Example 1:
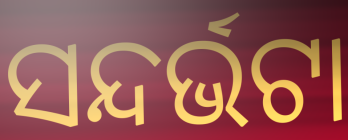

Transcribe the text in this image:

ସନ୍ଦର୍ଭଟା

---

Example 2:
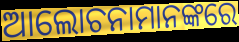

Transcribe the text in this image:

ଆଲୋଚନାମାନଙ୍କରେ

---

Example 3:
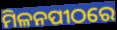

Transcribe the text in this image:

ମିଳନପୀଠରେ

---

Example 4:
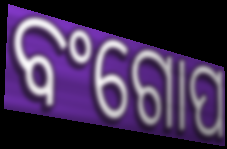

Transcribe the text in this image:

ବଂଗୋପ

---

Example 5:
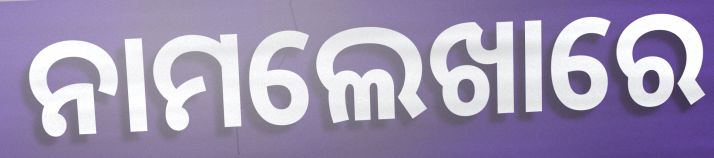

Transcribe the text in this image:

ନାମଲେଖାରେ